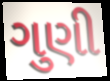
ગુણી